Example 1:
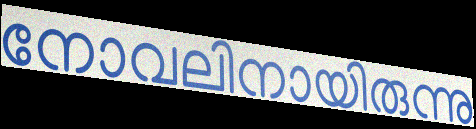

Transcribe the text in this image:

നോവലിനായിരുന്നു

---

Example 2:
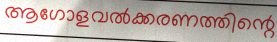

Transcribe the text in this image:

ആഗോളവൽക്കരണത്തിന്റെ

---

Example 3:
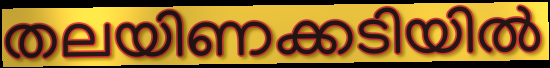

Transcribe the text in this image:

തലയിണക്കടിയിൽ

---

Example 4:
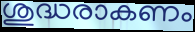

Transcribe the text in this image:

ശുദ്ധരാകണം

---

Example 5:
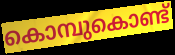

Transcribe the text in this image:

കൊമ്പുകൊണ്ട്